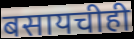
बसायचीही